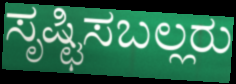
ಸೃಷ್ಟಿಸಬಲ್ಲರು